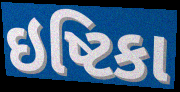
ઇષ્ટિકા